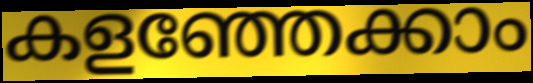
കളഞ്ഞേക്കാം